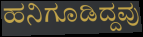
ಹನಿಗೂಡಿದ್ದವು